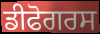
ਡੀਫੋਗਰਸ